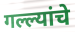
गल्ल्यांचे